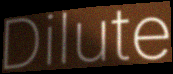
Dilute